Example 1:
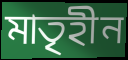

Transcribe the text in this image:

মাতৃহীন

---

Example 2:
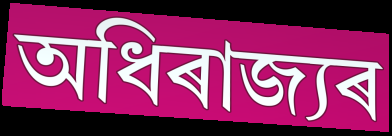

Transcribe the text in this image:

অধিৰাজ্যৰ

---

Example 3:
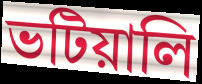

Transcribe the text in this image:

ভটিয়ালি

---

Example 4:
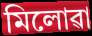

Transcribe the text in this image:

মিলোৱা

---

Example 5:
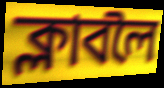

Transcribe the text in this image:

ক্লাবলৈ